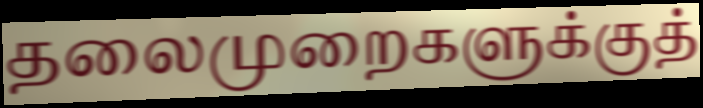
தலைமுறைகளுக்குத்